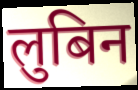
लुबिन